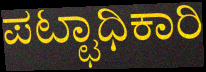
ಪಟ್ಟಾಧಿಕಾರಿ